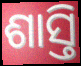
ଶାସ୍ତି